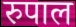
रुपाल